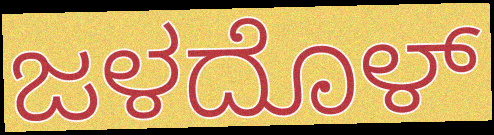
ಜಳದೊಳ್